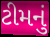
ટીમનું